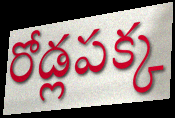
రోడ్లపక్క